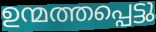
ഉന്മത്തപ്പെട്ടു